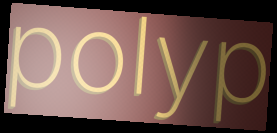
polyp